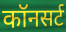
कॉनसर्ट